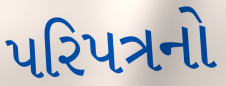
પરિપત્રનો